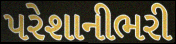
પરેશાનીભરી